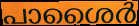
പാശൈർ